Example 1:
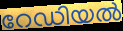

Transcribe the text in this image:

റേഡിയൽ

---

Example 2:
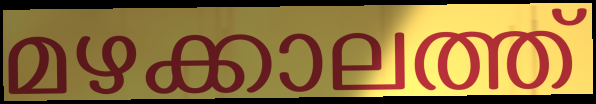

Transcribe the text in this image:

മഴക്കാലത്ത്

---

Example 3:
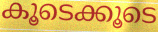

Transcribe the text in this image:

കൂടെക്കൂടെ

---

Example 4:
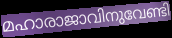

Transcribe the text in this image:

മഹാരാജാവിനുവേണ്ടി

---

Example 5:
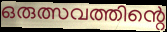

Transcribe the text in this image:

ഒരുത്സവത്തിന്റെ